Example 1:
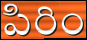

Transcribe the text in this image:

పిరిం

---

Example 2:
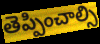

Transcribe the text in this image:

తెప్పించాల్సి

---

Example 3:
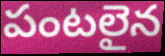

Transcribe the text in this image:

పంటలైన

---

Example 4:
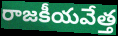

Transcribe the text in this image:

రాజకీయవేత్త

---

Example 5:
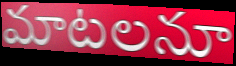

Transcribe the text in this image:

మాటలనూ